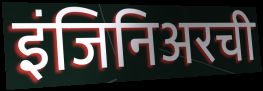
इंजिनिअरची